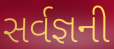
સર્વજ્ઞની